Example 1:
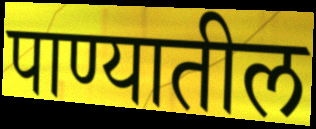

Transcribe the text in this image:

पाण्यातील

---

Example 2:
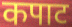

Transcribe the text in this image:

कपाट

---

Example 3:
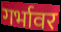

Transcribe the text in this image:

गर्भावर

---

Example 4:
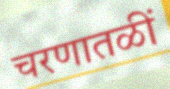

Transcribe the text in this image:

चरणातळीं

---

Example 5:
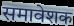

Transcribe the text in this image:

समावेशक